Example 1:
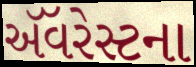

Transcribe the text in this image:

ઍૅવરેસ્ટના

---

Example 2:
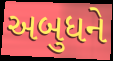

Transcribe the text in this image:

અબુધને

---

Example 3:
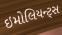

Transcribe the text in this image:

ઇમોલિયન્ટ્સ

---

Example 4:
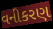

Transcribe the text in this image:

વનીકરણ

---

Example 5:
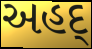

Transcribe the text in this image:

અહદ્